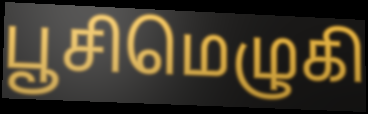
பூசிமெழுகி